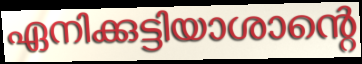
ഏനിക്കുട്ടിയാശാന്റെ